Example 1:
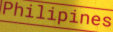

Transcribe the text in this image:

Philipines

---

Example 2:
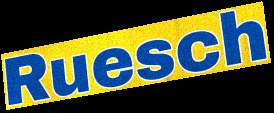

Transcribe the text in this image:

Ruesch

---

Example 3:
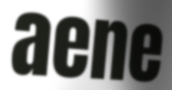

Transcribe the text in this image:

aene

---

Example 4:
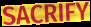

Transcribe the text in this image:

SACRIFY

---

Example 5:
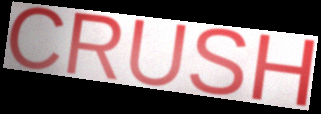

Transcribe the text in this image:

CRUSH